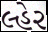
લ્હેર